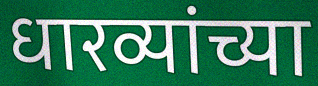
धारव्यांच्या